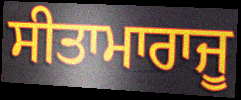
ਸੀਤਾਮਾਰਾਜੂ